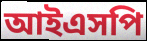
আইএসপি